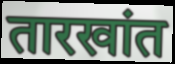
तारखांत